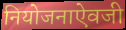
नियोजनाऐवजी